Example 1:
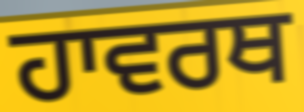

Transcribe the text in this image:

ਹਾਵਰਥ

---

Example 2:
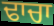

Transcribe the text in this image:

ਢਾਚਾ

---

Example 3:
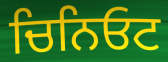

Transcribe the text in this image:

ਚਿਨਿਓਟ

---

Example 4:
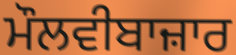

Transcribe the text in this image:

ਮੌਲਵੀਬਾਜ਼ਾਰ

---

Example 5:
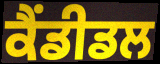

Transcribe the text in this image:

ਕੈਂਡੀਡਲ